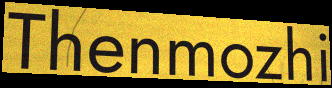
Thenmozhi